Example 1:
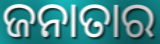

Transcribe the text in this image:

ଜନାତାର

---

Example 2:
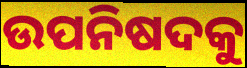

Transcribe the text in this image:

ଉପନିଷଦକୁ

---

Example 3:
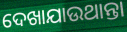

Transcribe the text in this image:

ଦେଖାଯାଉଥାନ୍ତା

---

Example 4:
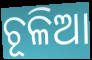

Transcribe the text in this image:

ଚୂଳିଆ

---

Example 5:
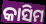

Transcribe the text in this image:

କାସିମ